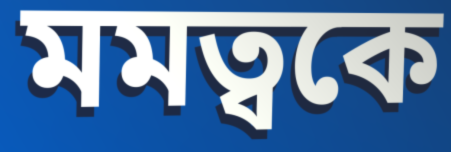
মমত্বকে